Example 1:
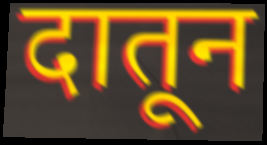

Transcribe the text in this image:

दातून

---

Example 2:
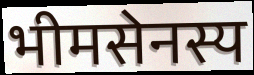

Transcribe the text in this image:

भीमसेनस्य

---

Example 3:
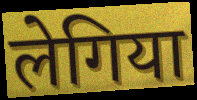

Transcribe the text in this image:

लेगिया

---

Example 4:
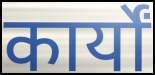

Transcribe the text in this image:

कार्यों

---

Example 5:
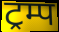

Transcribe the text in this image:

ट्रम्प